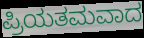
ಪ್ರಿಯತಮವಾದ